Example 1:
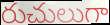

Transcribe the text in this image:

రుచులుగా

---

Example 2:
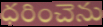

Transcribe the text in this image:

ధరించెను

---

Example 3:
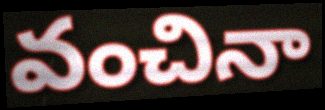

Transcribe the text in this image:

వంచినా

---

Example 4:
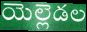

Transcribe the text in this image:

యెల్లెడల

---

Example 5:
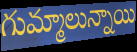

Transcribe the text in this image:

గుమ్మాలున్నాయి